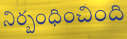
నిర్బంధించింది